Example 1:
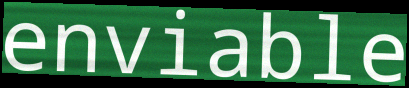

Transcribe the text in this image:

enviable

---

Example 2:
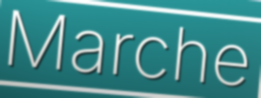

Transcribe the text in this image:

Marche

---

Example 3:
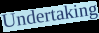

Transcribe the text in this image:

Undertaking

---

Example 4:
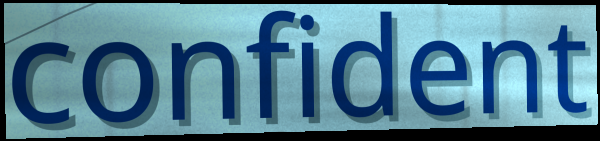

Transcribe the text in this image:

confident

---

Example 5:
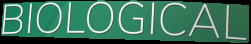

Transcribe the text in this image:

BIOLOGICAL